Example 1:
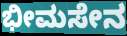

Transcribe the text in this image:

ಭೀಮಸೇನ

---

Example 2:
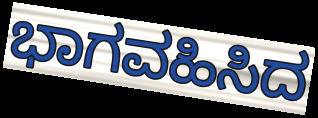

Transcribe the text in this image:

ಭಾಗವಹಿಸಿದ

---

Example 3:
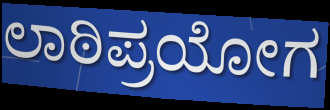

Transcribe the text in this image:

ಲಾಠಿಪ್ರಯೋಗ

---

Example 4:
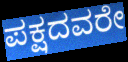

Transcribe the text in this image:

ಪಕ್ಷದವರೇ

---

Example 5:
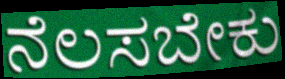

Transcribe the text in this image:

ನೆಲಸಬೇಕು